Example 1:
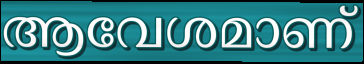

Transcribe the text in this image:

ആവേശമാണ്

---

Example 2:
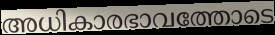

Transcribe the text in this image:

അധികാരഭാവത്തോടെ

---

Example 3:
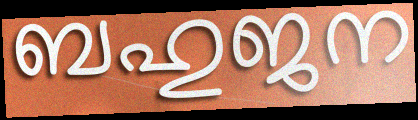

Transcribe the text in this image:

ബഹുജന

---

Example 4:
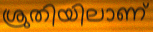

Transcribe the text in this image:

ശ്രുതിയിലാണ്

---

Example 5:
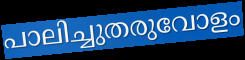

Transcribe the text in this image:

പാലിച്ചുതരുവോളം